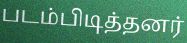
படம்பிடித்தனர்